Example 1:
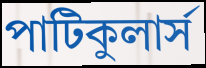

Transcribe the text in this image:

পাটিকুলার্স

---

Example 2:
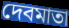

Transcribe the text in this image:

দেবমাতা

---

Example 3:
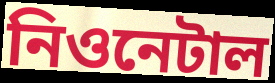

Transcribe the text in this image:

নিওনেটাল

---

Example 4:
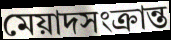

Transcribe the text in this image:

মেয়াদসংক্রান্ত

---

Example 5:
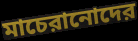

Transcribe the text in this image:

মাচেরানোদের